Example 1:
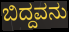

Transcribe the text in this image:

ಬಿದ್ದವನು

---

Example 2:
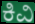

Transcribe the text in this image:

ಕಿವಿ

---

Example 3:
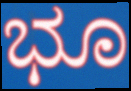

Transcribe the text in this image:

ಭೂ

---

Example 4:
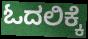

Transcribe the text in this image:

ಓದಲಿಕ್ಕೆ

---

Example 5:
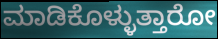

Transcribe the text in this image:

ಮಾಡಿಕೊಳ್ಳುತ್ತಾರೋ